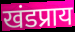
खंडप्राय